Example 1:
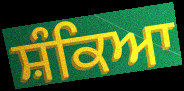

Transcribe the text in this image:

ਸ਼ੰਕਿਆ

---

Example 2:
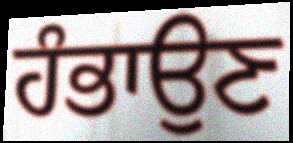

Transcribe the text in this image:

ਹੰਭਾਉਣ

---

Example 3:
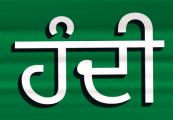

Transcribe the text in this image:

ਹੰਦੀ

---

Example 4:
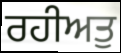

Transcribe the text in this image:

ਰਹੀਅਤੁ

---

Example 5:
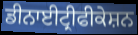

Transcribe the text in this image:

ਡੀਨਾਈਟ੍ਰੀਫੀਕੇਸ਼ਨ